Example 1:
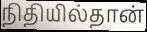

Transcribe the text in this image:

நிதியில்தான்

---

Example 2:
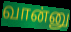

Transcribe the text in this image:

வான்னு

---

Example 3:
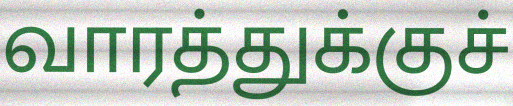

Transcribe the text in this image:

வாரத்துக்குச்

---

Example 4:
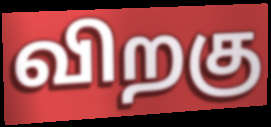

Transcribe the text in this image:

விறகு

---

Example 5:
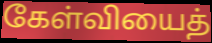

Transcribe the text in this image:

கேள்வியைத்